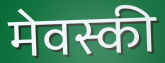
मेवस्की